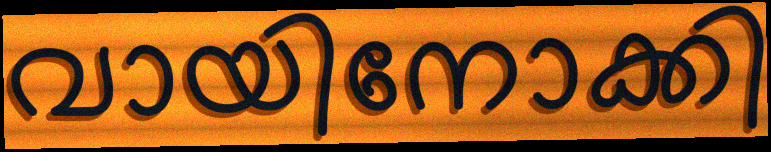
വായിനോക്കി